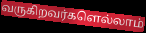
வருகிறவர்களெல்லாம்